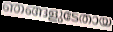
ഞങ്ങളുടേതായ